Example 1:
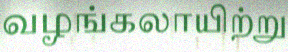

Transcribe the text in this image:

வழங்கலாயிற்று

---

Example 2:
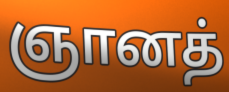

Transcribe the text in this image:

ஞானத்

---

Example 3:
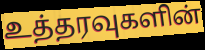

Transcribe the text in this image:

உத்தரவுகளின்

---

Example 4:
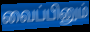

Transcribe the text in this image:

வைப்பினும்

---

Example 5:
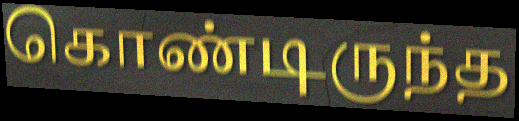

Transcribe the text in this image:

கொண்டிருந்த